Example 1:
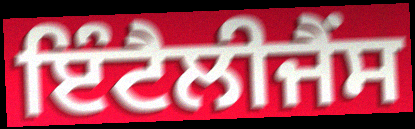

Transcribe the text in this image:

ਇੰਟੈਲੀਜੈਂਸ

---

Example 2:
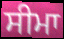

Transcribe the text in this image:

ਸੀਮਾ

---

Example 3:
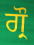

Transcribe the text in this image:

ਗ੍ਰੌ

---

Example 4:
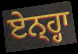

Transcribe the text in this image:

ਏਨ੍ਹ੍ਹਾ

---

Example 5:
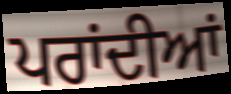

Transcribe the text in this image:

ਪਰਾਂਦੀਆਂ